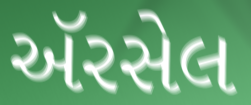
ઍરસેલ